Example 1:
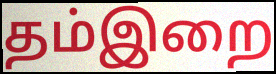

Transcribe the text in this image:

தம்இறை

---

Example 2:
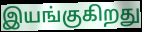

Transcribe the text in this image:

இயங்குகிறது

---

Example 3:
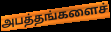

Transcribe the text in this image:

அபத்தங்களைச்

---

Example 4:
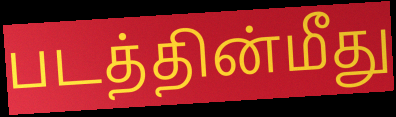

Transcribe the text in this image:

படத்தின்மீது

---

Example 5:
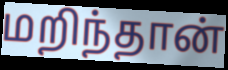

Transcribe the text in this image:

மறிந்தான்